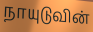
நாயுடுவின்